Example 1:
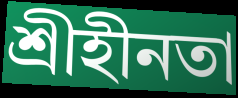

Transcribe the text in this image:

শ্রীহীনতা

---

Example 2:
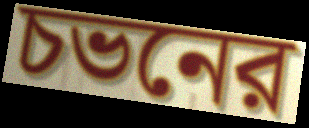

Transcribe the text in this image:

চভনের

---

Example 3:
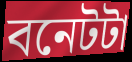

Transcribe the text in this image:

বনেটটা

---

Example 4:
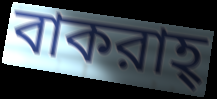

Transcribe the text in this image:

বাকরাহ্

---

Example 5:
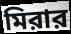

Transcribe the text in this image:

মিরার